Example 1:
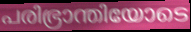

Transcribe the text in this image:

പരിഭ്രാന്തിയോടെ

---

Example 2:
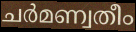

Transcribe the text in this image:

ചർമണ്വതീം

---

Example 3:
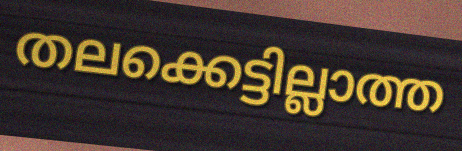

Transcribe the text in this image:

തലക്കെട്ടില്ലാത്ത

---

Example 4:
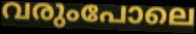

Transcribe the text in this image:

വരുംപോലെ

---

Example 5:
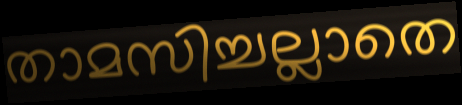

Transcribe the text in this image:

താമസിച്ചല്ലാതെ